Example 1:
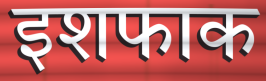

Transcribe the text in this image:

इशफाक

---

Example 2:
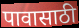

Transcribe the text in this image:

पावासाठी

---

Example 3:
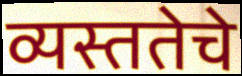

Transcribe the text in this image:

व्यस्ततेचे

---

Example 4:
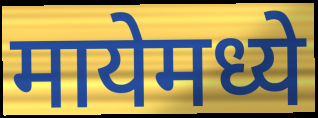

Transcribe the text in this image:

मायेमध्ये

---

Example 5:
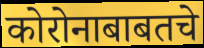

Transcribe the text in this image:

कोरोनाबाबतचे